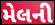
મેલની